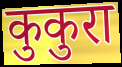
कुकुरा